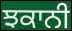
ਝਕਾਨੀ